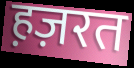
ह़ज़रत